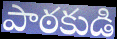
పాఠకుడి